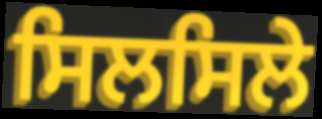
ਸਿਲਸਿਲੇ